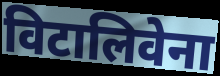
विटालिवेना